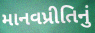
માનવપ્રીતિનું